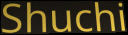
Shuchi